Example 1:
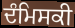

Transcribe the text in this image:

ਦੰਮਿਸਕੀ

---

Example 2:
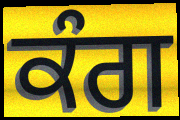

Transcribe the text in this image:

ਕੰਗ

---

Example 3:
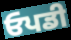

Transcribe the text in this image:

ਓਪਡੀ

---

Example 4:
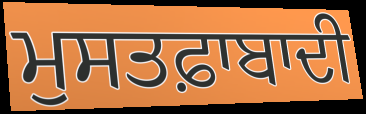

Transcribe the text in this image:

ਮੁਸਤਫ਼ਾਬਾਦੀ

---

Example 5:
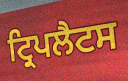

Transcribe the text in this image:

ਟ੍ਰਿਪਲੈਟਸ